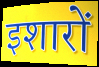
इशारों